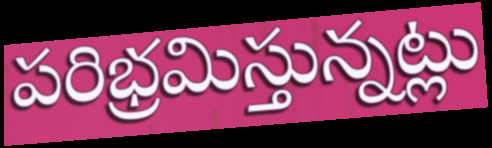
పరిభ్రమిస్తున్నట్లు